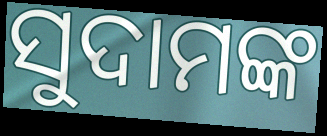
ସୁଦାମଙ୍କ